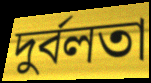
দুৰ্বলতা